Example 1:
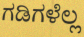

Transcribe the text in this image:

ಗಡಿಗಳೆಲ್ಲ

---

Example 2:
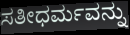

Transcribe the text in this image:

ಸತೀಧರ್ಮವನ್ನು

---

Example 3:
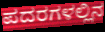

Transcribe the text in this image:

ಪದರಗಳಲ್ಲಿನ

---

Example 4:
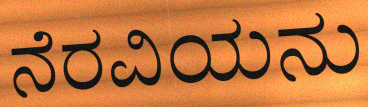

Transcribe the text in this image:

ನೆರವಿಯನು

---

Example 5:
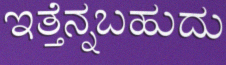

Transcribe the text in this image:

ಇತ್ತೆನ್ನಬಹುದು